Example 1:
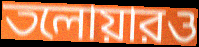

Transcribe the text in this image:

তলোয়ারও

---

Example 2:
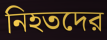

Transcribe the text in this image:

নিহতদের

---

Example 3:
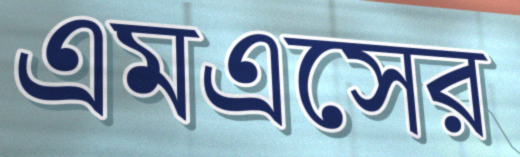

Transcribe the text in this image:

এমএসের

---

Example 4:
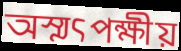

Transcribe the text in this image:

অস্মৎপক্ষীয়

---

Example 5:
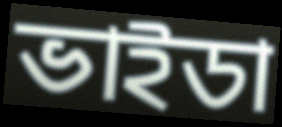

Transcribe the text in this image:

ভাইডা